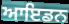
ਆਇਡਨ